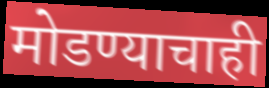
मोडण्याचाही